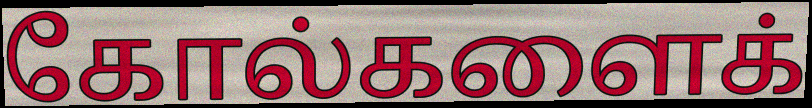
கோல்களைக்